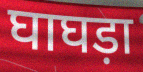
घाघड़ा